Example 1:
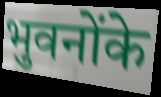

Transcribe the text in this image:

भुवनोंके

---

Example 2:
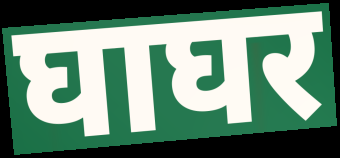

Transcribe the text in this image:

घाघर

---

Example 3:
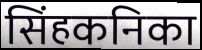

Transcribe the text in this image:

सिंहकनिका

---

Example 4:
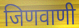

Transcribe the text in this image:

जिणवाणी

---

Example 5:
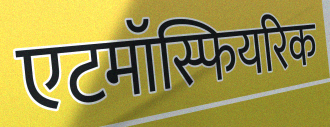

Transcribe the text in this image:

एटमॉस्फियरिक